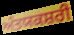
ਅੰਤਯਕਸ਼ਰੀ